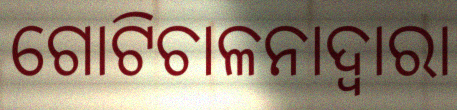
ଗୋଟିଚାଳନାଦ୍ୱାରା